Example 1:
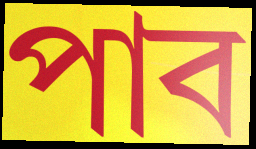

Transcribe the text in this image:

পাব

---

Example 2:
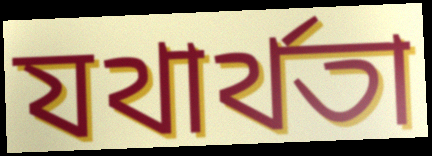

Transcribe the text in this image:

যথাৰ্থতা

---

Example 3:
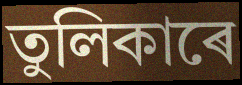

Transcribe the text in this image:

তুলিকাৰে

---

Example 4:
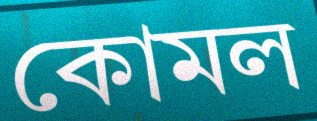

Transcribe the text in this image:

কোমল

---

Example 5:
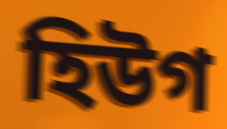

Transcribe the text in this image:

হিউগ